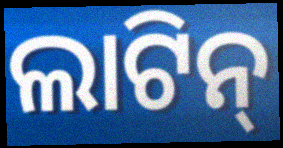
ଲାଟିନ୍